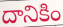
దానికిం